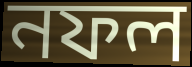
নফল